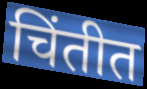
चिंतीत